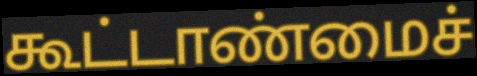
கூட்டாண்மைச்